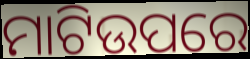
ମାଟିଉପରେ